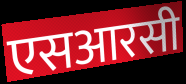
एसआरसी